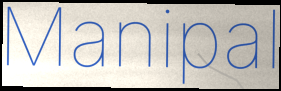
Manipal